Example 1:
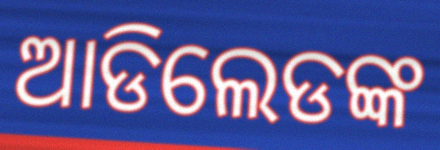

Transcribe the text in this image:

ଆଡିଲେଡଙ୍କ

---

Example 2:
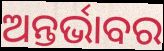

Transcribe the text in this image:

ଅନ୍ତର୍ଭାବର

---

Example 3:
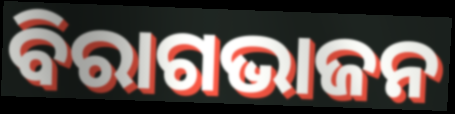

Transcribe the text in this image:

ବିରାଗଭାଜନ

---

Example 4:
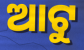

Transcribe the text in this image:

ଆଟୁ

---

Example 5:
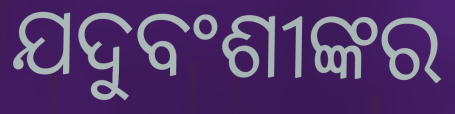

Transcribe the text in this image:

ଯଦୁବଂଶୀଙ୍କର